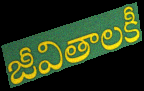
జీవితాలకీ